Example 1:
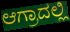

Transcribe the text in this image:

ಆಗ್ರಾದಲ್ಲಿ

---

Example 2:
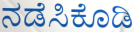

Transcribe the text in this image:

ನಡೆಸಿಕೊಡಿ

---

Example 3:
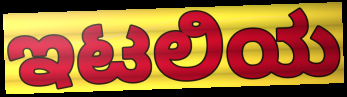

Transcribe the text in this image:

ಇಟಲಿಯ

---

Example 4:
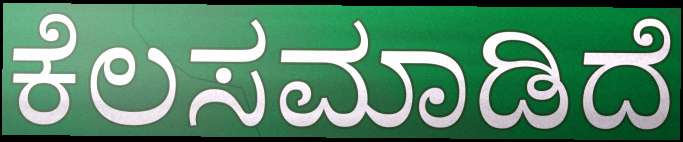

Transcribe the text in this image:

ಕೆಲಸಮಾಡಿದೆ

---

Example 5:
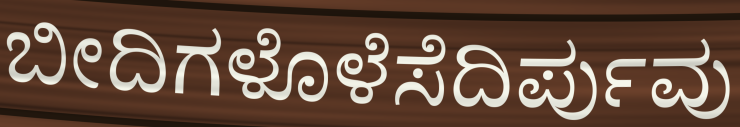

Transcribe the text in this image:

ಬೀದಿಗಳೊಳೆಸೆದಿರ್ಪುವು